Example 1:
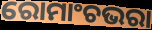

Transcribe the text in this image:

ରୋମାଂଚଭରା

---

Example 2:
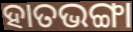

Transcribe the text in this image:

ହାତଭଙ୍ଗା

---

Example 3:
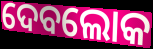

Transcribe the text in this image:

ଦେବଲୋକ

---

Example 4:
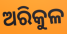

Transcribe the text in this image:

ଅରିକୁଳ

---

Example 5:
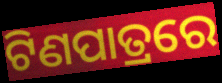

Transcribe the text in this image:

ଟିଣପାତ୍ରରେ